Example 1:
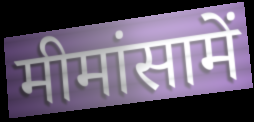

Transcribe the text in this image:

मीमांसामें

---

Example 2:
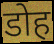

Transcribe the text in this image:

डोह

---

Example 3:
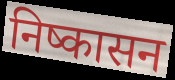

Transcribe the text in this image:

निष्कासन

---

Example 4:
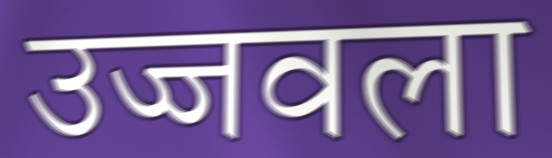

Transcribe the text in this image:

उज्जवला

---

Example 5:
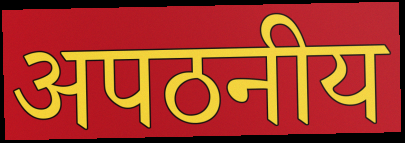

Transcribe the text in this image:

अपठनीय